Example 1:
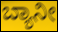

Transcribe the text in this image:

ಬ್ಯಾನೀ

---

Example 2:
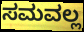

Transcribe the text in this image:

ಸಮವಲ್ಲ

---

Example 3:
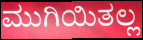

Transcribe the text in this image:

ಮುಗಿಯಿತಲ್ಲ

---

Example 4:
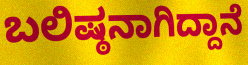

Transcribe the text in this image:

ಬಲಿಷ್ಠನಾಗಿದ್ದಾನೆ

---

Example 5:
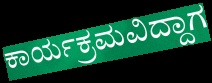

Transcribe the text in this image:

ಕಾರ್ಯಕ್ರಮವಿದ್ದಾಗ